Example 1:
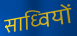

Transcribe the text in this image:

साध्वियों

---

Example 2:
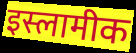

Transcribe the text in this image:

इस्लामीक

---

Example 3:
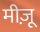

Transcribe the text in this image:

मीज़ू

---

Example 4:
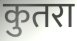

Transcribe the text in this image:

कुतरा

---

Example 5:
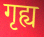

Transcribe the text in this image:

गृह्य